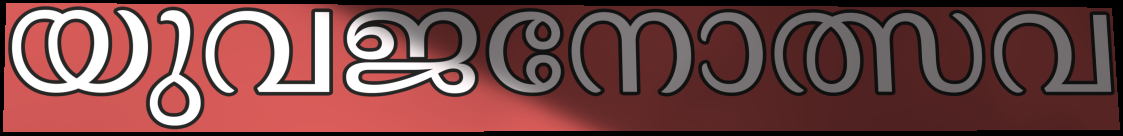
യുവജനോത്സവ